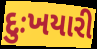
દુઃખયારી